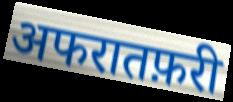
अफरातफ़री